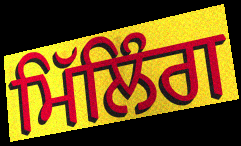
ਮਿੱਲਿੰਗ